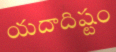
యదాదిష్టం